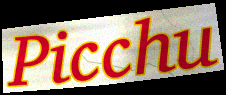
Picchu